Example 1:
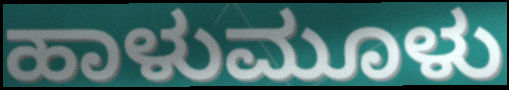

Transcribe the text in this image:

ಹಾಳುಮೂಳು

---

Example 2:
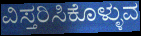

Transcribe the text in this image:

ವಿಸ್ತರಿಸಿಕೊಳ್ಳುವ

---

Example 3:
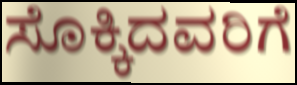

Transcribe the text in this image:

ಸೊಕ್ಕಿದವರಿಗೆ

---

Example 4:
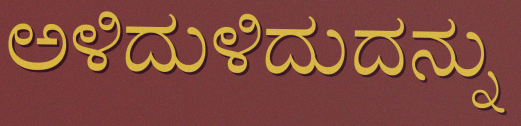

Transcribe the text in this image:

ಅಳಿದುಳಿದುದನ್ನು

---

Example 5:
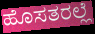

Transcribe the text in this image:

ಹೊಸತರಲ್ಲೆ